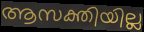
ആസക്തിയില്ല